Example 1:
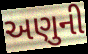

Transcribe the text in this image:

અણુની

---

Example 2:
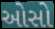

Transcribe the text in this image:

ઓસો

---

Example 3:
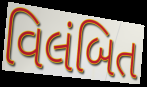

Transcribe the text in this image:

વિલંબિત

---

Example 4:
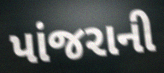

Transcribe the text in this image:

પાંજરાની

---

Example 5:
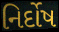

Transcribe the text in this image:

નિર્દોષ